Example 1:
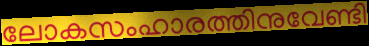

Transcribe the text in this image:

ലോകസംഹാരത്തിനുവേണ്ടി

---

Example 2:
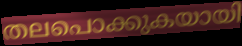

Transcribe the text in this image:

തലപൊക്കുകയായി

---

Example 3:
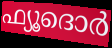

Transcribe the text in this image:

ഫ്യൂദൊർ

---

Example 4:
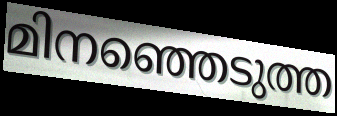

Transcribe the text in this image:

മിനഞ്ഞെടുത്ത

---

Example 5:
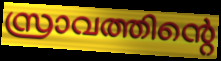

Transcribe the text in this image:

സ്രാവത്തിന്റെ